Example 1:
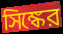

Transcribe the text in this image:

সিঙ্কের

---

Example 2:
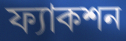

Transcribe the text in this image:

ফ্যাকশন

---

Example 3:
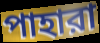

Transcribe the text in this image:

পাহারা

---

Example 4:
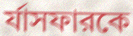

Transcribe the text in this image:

র্যাসফারকে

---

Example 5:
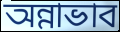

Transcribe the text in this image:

অন্নাভাব